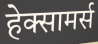
हेक्सामर्स